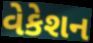
વેકેશન